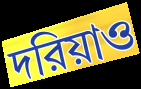
দরিয়াও